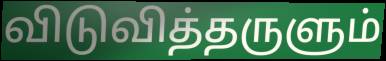
விடுவித்தருளும்